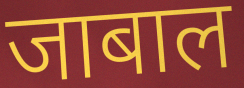
जाबाल